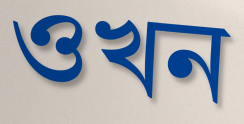
ওখন